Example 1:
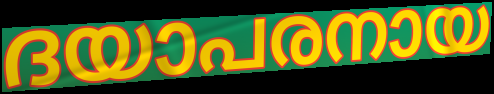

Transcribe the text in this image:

ദയാപരനായ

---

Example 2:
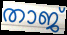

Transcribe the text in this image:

താജ്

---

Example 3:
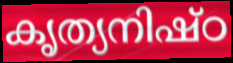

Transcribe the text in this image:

കൃത്യനിഷ്ഠ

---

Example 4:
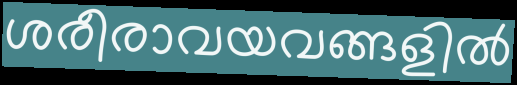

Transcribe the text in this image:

ശരീരാവയവങ്ങളിൽ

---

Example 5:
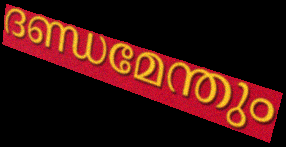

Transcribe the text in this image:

ദണ്ഡമേന്തും